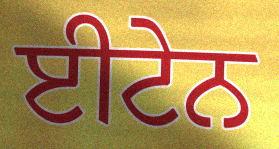
ਈਟੇਨ